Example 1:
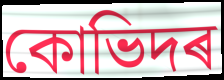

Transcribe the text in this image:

কোভিদৰ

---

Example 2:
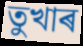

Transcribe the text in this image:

তুখাৰ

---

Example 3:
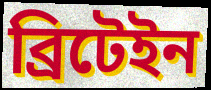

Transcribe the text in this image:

ব্ৰিটেইন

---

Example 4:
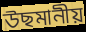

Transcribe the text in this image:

উছমানীয়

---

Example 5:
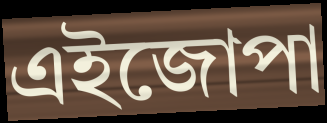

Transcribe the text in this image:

এইজোপা